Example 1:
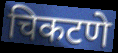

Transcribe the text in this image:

चिकटणे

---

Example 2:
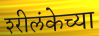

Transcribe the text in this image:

श्रीलंकेच्या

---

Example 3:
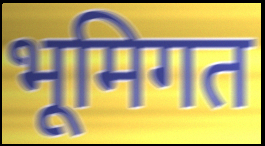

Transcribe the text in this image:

भूमिगत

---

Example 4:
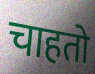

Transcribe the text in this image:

चाहतो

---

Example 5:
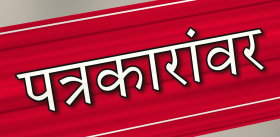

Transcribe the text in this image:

पत्रकारांवर